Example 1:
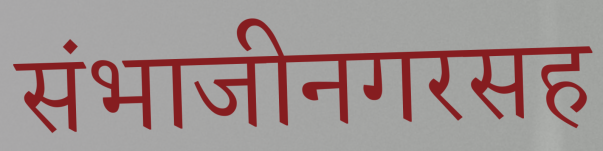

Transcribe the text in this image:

संभाजीनगरसह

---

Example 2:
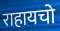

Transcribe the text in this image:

राहायचो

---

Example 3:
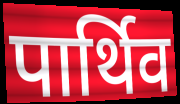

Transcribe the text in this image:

पार्थिव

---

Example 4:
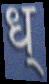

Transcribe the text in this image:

ध्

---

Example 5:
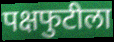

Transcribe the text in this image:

पक्षफुटीला